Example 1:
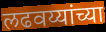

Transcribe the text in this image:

लढवय्यांच्या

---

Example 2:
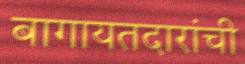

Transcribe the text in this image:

बागायतदारांची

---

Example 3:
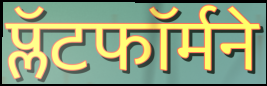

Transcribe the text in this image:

प्लॅटफॉर्मने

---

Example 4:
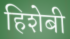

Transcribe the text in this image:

हिशेबी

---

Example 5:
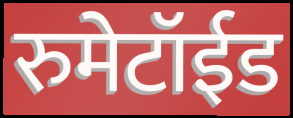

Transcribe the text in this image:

रुमेटॉईड